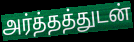
அர்த்தத்துடன்